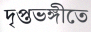
দৃপ্তভঙ্গীতে